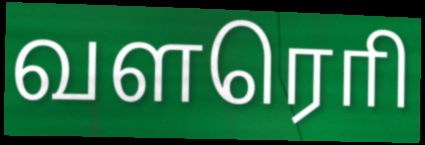
வளரெரி